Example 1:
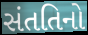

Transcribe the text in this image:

સંતતિનો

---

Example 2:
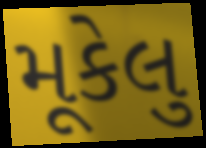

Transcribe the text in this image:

મૂકેલુ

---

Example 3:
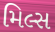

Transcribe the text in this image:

મિલ્સ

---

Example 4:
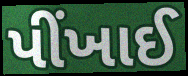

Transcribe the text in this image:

પીંખાઈ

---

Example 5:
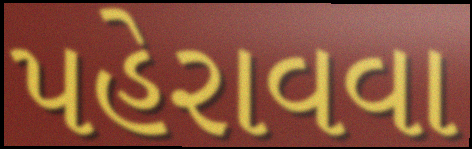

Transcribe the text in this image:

પહેરાવવા